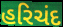
હરિચંદ